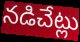
నడిచేట్లు